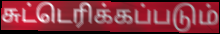
சுட்டெரிக்கப்படும்